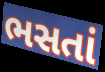
ભસતાં